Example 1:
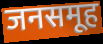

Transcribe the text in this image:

जनसमूह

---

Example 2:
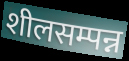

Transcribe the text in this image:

शीलसम्पन्न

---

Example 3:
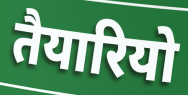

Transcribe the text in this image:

तैयारियो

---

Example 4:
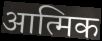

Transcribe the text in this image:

आत्मिक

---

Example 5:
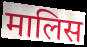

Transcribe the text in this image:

मालिस